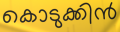
കൊടുക്കിൻ